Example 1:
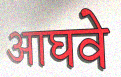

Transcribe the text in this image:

आघवे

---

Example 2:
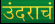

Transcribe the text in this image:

उंदराचं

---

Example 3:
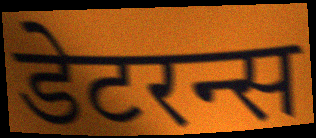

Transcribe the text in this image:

डेटरन्स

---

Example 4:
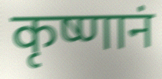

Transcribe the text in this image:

कृष्णानं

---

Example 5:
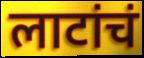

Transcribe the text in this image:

लाटांचं